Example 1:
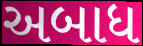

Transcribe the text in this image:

અબાધ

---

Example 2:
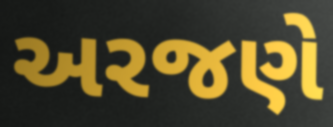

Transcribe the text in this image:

અરજણે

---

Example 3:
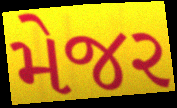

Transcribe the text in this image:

મેજર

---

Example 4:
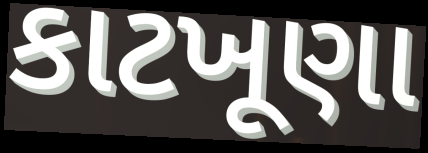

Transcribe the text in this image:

કાટખૂણા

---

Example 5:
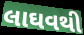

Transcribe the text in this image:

લાઘવથી